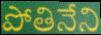
పోతినేని